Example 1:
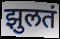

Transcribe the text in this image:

झुलतं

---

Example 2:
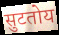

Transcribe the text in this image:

सुटतोय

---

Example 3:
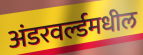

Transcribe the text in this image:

अंडरवर्ल्डमधील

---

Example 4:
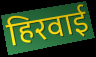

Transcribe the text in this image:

हिरवाई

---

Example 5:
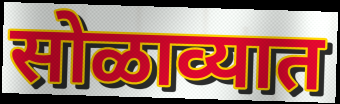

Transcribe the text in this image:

सोळाव्यात